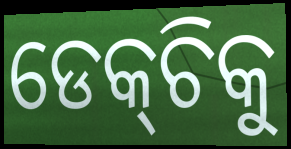
ଡେକ୍‌ଚିକୁ